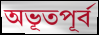
অভূতপূর্ব